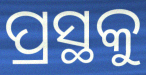
ପ୍ରସ୍ଥକୁ